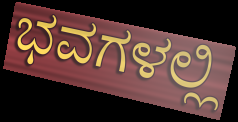
ಭವಗಳಲ್ಲಿ